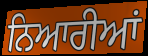
ਨਿਆਰੀਆਂ